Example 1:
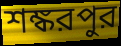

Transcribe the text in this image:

শঙ্করপুর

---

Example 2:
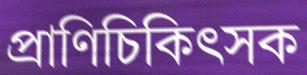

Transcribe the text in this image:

প্রাণিচিকিৎসক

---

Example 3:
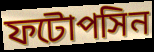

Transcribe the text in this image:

ফটোপসিন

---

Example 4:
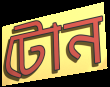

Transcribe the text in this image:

টোন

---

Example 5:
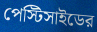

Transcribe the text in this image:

পেস্টিসাইডের